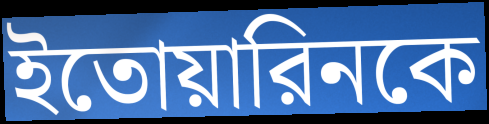
ইতোয়ারিনকে